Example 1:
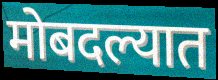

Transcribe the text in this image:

मोबदल्यात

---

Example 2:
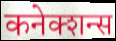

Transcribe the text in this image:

कनेक्शन्स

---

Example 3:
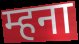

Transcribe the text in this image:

म्हना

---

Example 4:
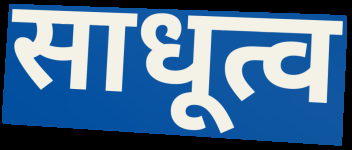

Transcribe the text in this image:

साधूत्व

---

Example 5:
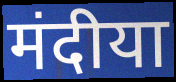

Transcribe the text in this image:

मंदीया